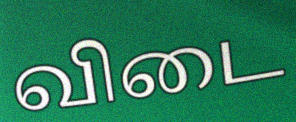
விடை